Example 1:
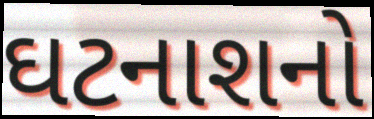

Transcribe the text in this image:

ઘટનાશનો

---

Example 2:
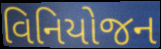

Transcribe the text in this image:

વિનિયોજન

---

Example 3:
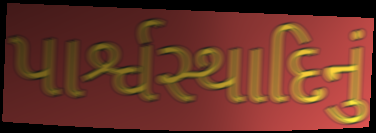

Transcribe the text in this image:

પાર્શ્વસ્થાદિનું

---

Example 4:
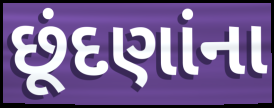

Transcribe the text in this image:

છૂંદણાંના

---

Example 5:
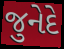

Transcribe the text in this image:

જુનેદે